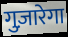
गुज़ारेगा